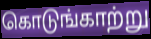
கொடுங்காற்று